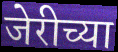
जेरीच्या